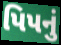
પિપનું